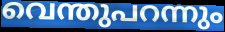
വെന്തുപറന്നും